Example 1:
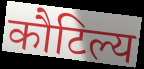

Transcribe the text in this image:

कौटिल्य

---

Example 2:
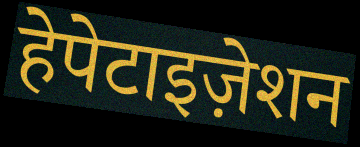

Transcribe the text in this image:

हेपेटाइज़ेशन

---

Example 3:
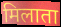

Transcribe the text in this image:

मिलाता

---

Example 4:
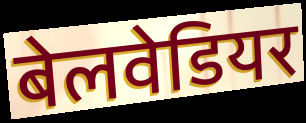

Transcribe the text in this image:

बेलवेडियर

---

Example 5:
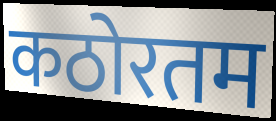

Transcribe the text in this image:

कठोरतम